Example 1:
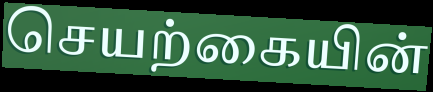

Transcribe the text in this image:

செயற்கையின்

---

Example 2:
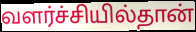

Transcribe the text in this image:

வளர்ச்சியில்தான்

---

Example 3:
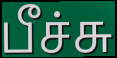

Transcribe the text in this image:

பீச்சு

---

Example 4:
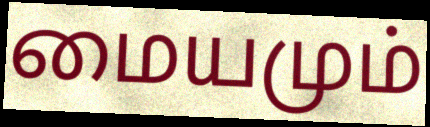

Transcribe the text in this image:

மையமும்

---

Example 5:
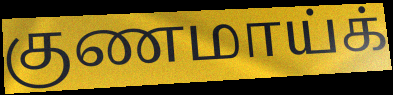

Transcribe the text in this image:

குணமாய்க்